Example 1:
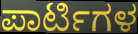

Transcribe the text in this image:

ಪಾರ್ಟಿಗಳ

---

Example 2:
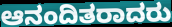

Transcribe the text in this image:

ಆನಂದಿತರಾದರು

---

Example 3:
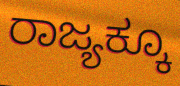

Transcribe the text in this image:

ರಾಜ್ಯಕ್ಕೂ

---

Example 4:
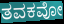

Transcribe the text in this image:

ತವಕವೋ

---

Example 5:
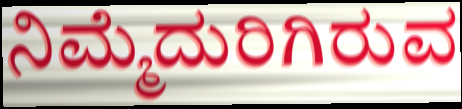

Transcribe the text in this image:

ನಿಮ್ಮೆದುರಿಗಿರುವ